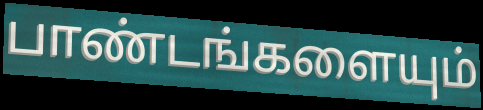
பாண்டங்களையும்